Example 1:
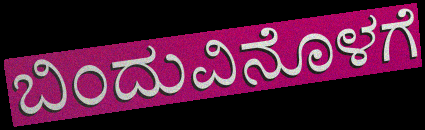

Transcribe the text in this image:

ಬಿಂದುವಿನೊಳಗೆ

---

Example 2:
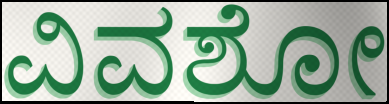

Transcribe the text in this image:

ವಿವಶೋ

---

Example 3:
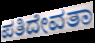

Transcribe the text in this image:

ಪತಿದೇವತಾ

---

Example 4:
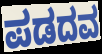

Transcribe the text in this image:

ಪಡದವ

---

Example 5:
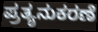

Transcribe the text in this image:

ಪ್ರತ್ಯನುಕರಣೆ